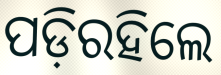
ପଡ଼ିରହିଲେ